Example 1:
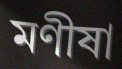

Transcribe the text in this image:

মণীষা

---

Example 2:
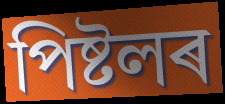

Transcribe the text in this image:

পিষ্টলৰ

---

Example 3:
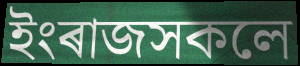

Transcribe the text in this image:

ইংৰাজসকলে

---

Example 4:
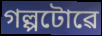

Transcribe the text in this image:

গল্পটোৱে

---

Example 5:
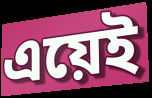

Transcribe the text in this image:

এয়েই